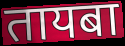
तायबा